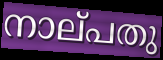
നാല്‌പതു